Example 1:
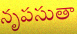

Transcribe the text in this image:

నృపసుతా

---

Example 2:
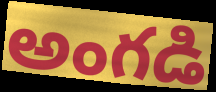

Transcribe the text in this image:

అంగడి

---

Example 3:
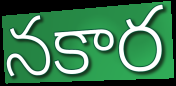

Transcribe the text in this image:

నకార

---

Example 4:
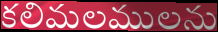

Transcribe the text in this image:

కలిమలములను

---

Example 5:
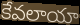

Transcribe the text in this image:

కేవలాయా